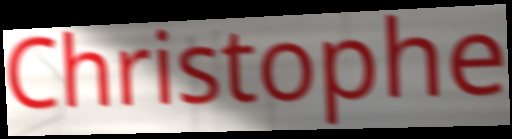
Christophe